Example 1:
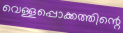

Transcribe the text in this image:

വെള്ളപ്പൊക്കത്തിന്റെ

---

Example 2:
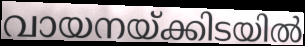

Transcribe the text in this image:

വായനയ്ക്കിടയിൽ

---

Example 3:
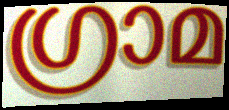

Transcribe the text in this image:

ഗ്രാമ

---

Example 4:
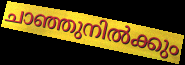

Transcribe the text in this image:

ചാഞ്ഞുനിൽക്കും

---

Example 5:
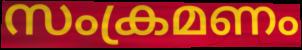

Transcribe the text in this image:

സംക്രമണം